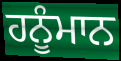
ਹਨੂੰਮਾਨ